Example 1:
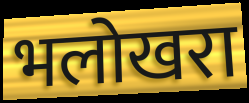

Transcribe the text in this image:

भलोखरा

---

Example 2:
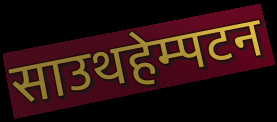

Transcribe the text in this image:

साउथहेम्पटन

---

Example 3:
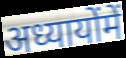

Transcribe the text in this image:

अध्यायोंमें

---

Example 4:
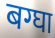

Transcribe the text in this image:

बग्घा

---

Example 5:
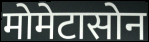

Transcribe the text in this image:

मोमेटासोन